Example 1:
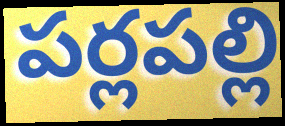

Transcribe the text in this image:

పర్లపల్లి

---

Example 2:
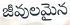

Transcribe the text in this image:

జీవులమైన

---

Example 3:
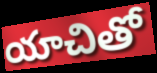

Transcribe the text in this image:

యాచితో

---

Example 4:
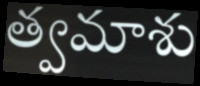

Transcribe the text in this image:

త్వమాశు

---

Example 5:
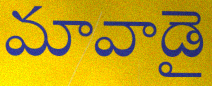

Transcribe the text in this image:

మావాడై